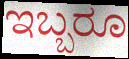
ಇಬ್ಬರೂ